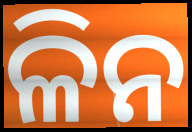
ଳିନ